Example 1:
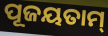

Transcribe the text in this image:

ପୂଜୟତାମ୍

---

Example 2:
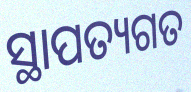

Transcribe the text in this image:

ସ୍ଥାପତ୍ୟଗତ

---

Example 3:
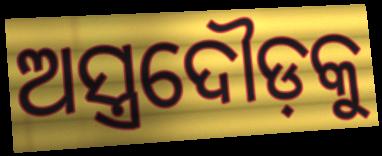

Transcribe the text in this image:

ଅସ୍ତ୍ରଦୌଡ଼କୁ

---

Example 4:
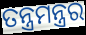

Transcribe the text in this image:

ତନ୍ତ୍ରମନ୍ତ୍ରର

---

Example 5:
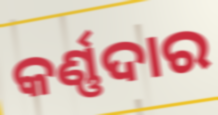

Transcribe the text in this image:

କର୍ଣ୍ଣଦାର